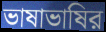
ভাষাভাষির